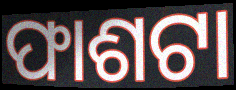
ଫାଶଟା